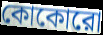
কোকোরো